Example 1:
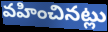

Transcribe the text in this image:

వహించినట్లు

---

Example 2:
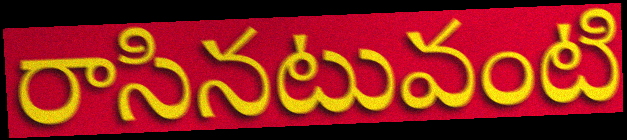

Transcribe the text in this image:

రాసినటువంటి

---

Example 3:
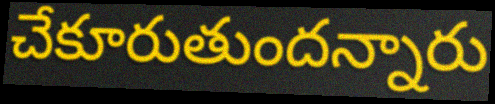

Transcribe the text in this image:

చేకూరుతుందన్నారు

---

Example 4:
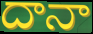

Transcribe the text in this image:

దానా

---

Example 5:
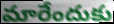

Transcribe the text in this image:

మారేందుకు